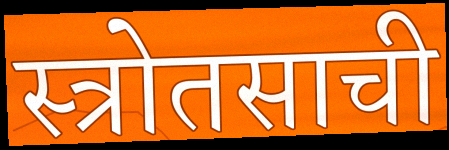
स्त्रोतसाची